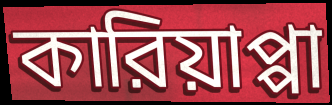
কারিয়াপ্পা